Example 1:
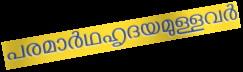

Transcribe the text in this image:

പരമാർഥഹൃദയമുള്ളവർ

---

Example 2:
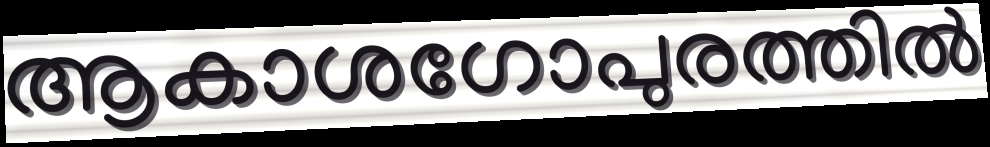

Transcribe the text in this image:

ആകാശഗോപുരത്തിൽ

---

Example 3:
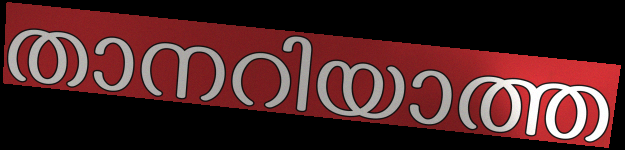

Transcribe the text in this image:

താനറിയാത്ത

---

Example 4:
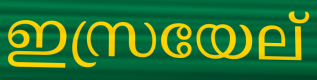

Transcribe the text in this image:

ഇസ്രയേല്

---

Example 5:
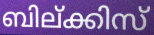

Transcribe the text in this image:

ബില്ക്കിസ്